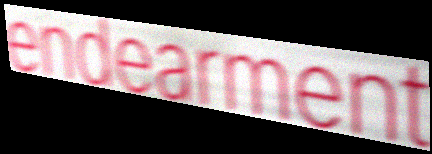
endearment